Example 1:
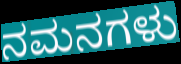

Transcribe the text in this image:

ನಮನಗಳು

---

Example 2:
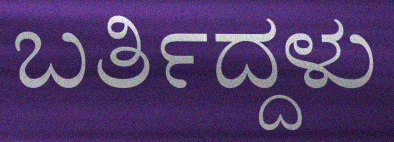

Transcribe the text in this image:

ಬರ್ತಿದ್ದಳು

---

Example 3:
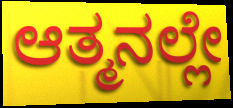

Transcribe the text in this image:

ಆತ್ಮನಲ್ಲೇ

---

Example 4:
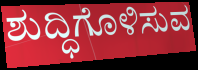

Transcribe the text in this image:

ಶುದ್ಧಿಗೊಳಿಸುವ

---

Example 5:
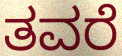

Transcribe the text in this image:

ತವರೆ